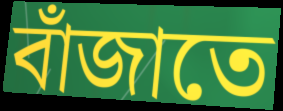
বাঁজাতে